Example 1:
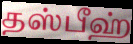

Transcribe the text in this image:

தஸ்பீஹ்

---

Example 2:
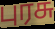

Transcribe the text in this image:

புரசு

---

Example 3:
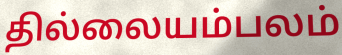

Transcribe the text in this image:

தில்லையம்பலம்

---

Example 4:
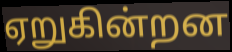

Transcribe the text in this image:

ஏறுகின்றன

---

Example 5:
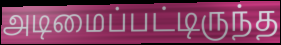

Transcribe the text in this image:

அடிமைப்பட்டிருந்த